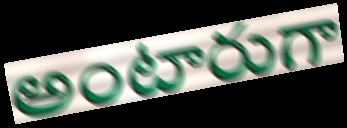
అంటారుగా